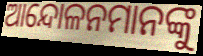
ଆନ୍ଦୋଳନମାନଙ୍କୁ